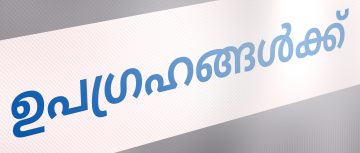
ഉപഗ്രഹങ്ങൾക്ക്